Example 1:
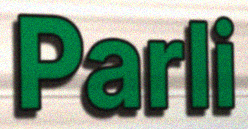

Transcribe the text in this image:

Parli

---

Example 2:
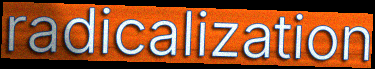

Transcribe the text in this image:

radicalization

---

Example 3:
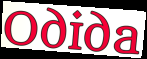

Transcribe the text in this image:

Odida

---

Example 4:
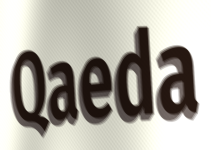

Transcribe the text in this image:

Qaeda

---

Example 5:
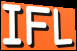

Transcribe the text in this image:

IFL